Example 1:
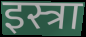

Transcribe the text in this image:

इस्त्रा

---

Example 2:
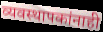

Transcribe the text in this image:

व्यवस्थापकांनाही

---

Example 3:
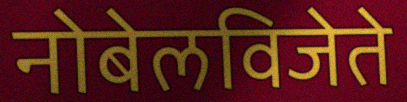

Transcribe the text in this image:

नोबेलविजेते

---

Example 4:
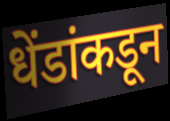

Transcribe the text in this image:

धेंडांकडून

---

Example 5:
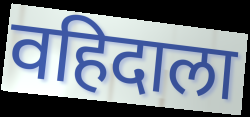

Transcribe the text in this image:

वहिदाला